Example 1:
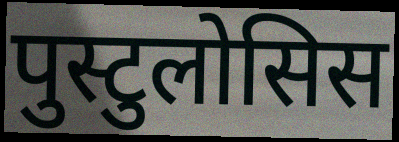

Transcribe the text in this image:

पुस्टुलोसिस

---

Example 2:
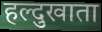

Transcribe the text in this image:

हल्दुखाता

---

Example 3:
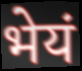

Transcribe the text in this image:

भेयं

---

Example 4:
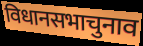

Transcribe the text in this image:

विधानसभाचुनाव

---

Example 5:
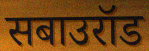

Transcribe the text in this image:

सबाउरॉड